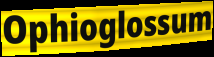
Ophioglossum